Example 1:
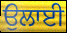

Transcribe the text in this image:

ਉਲਾਈ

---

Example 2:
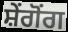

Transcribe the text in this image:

ਸ਼ੇਂਗੋਂਗ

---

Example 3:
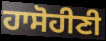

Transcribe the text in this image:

ਹਾਸੋਹੀਣੀ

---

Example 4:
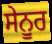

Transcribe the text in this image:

ਸੇਨੂਰ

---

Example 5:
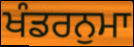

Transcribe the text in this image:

ਖੰਡਰਨੁਮਾ